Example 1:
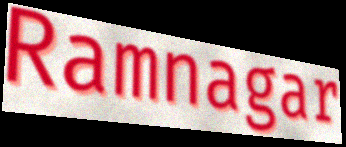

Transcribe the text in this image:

Ramnagar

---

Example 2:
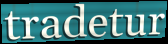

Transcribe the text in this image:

tradetur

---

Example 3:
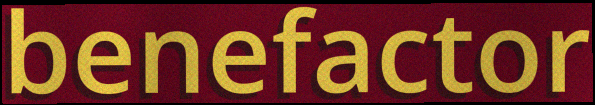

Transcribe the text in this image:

benefactor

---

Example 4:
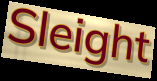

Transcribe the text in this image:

Sleight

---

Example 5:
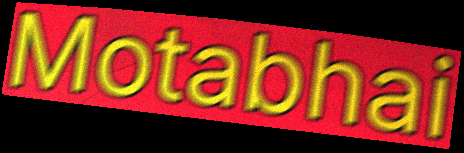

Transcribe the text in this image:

Motabhai